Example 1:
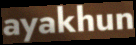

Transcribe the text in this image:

ayakhun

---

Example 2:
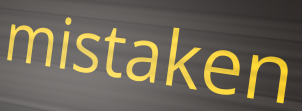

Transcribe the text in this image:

mistaken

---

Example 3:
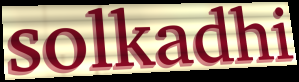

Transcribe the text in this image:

solkadhi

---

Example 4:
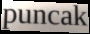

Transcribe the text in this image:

puncak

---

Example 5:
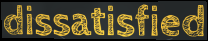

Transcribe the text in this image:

dissatisfied